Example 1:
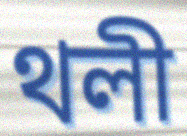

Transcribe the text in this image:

থলী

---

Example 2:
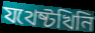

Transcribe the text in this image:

যথেষ্টখিনি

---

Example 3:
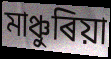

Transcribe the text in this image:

মাঞ্চুৰিয়া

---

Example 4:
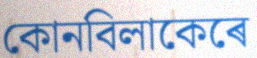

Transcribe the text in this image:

কোনবিলাকেৰে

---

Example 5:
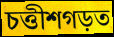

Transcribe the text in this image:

চত্তীশগড়ত